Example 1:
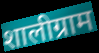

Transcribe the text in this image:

शालीग्राम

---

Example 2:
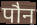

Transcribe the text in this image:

पौन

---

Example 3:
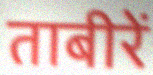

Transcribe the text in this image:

ताबीरें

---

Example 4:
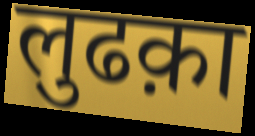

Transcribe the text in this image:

लुढक़ा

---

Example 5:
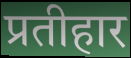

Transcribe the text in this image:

प्रतीहार